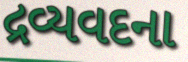
દ્રવ્યવદના